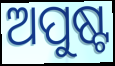
ଅପୁଷ୍ଟ